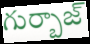
గుర్బాజ్